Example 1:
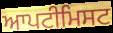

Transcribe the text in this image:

ਆਪਟੀਮਿਸਟ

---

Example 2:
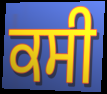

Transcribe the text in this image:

ਕਸੀ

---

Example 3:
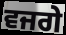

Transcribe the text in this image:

ਵਜਗੇ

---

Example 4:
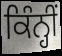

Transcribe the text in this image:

ਕਿੰਨ੍ਹੀਂ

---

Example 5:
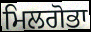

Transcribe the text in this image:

ਮਿਲਗੋਭਾ